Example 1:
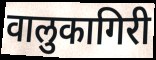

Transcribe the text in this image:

वालुकागिरी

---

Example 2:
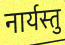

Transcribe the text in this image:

नार्यस्तु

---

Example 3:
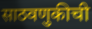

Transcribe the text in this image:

साठवणुकीची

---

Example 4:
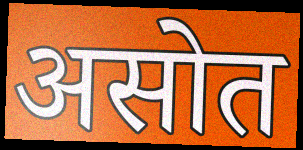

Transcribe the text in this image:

असोत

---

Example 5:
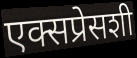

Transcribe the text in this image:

एक्सप्रेसशी